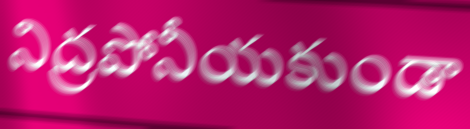
నిద్రపోనీయకుండా